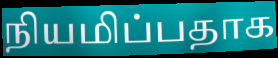
நியமிப்பதாக